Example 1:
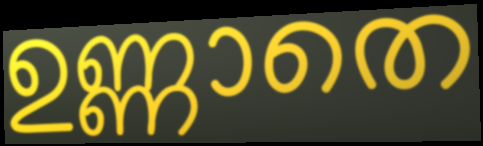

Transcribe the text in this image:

ഉണ്ണാതെ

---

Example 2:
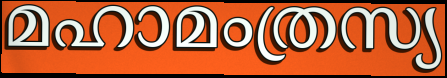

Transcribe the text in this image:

മഹാമംത്രസ്യ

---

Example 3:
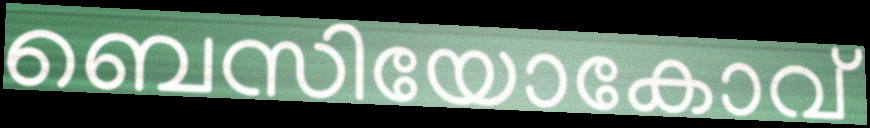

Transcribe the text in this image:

ബെസിയോകോവ്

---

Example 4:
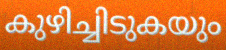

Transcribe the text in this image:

കുഴിച്ചിടുകയും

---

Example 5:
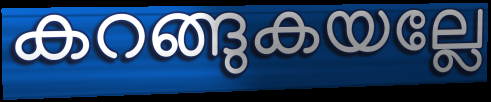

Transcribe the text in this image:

കറങ്ങുകയല്ലേ